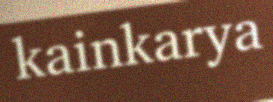
kainkarya